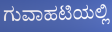
ಗುವಾಹಟಿಯಲ್ಲಿ